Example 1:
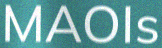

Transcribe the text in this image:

MAOIs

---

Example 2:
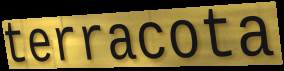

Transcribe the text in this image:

terracota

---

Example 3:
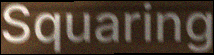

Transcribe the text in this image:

Squaring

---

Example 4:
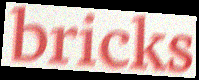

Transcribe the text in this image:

bricks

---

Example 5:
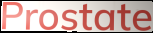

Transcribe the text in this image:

Prostate